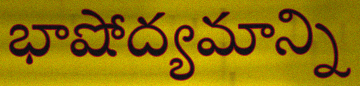
భాషోద్యమాన్ని